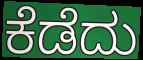
ಕೆಡೆದು